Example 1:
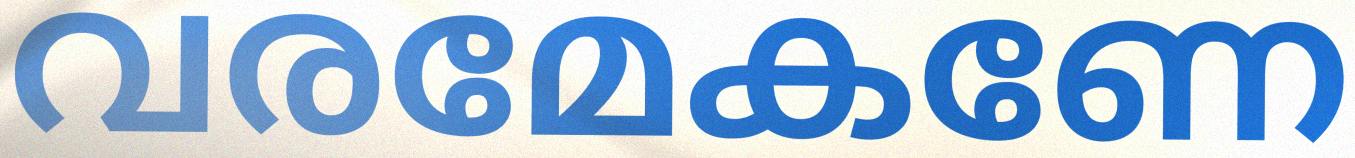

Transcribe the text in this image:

വരമേകണേ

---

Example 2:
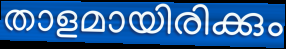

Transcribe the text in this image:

താളമായിരിക്കും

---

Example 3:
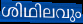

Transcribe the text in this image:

ശിഥിലവും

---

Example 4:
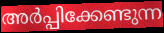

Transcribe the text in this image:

അർപ്പിക്കേണ്ടുന്ന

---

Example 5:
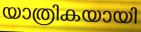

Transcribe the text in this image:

യാത്രികയായി